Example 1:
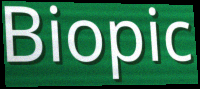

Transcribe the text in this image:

Biopic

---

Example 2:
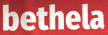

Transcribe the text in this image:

bethela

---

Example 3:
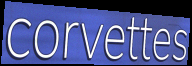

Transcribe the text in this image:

corvettes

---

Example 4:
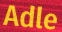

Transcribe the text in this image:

Adle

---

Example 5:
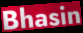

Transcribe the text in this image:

Bhasin